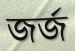
জর্জ